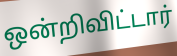
ஒன்றிவிட்டார்